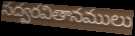
సద్వరవితానములు